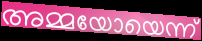
അമ്മയോയെന്ന്